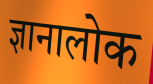
ज्ञानालोक